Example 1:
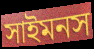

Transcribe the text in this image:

সাইমনস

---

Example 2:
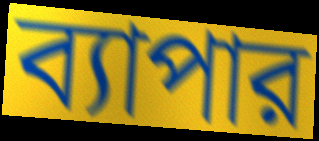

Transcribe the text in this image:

ব্যাপার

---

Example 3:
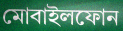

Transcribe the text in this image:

মোবাইলফোন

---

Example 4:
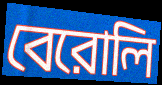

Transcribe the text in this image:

বেরোলি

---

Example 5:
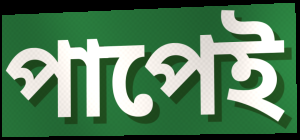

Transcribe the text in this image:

পাপেই